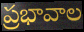
ప్రభావాల